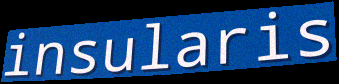
insularis